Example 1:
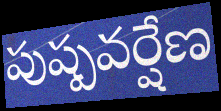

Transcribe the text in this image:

పుష్పవర్షేణ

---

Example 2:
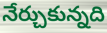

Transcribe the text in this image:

నేర్చుకున్నది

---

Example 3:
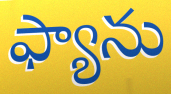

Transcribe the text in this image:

ఫ్యాను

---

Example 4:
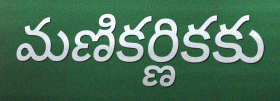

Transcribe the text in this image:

మణికర్ణికకు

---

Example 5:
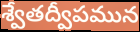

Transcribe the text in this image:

శ్వేతద్వీపమున